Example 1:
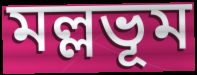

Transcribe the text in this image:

মল্লভূম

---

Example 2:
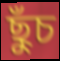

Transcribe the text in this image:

ছুঁচ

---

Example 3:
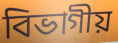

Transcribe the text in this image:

বিভাগীয়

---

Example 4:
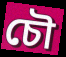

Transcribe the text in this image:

চৌ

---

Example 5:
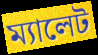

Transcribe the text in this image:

ম্যালেট